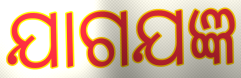
ଯାଗଯଜ୍ଞ